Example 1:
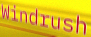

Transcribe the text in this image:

Windrush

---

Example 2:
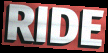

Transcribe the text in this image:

RIDE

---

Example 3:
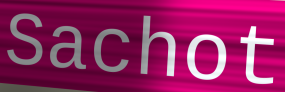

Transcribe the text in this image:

Sachot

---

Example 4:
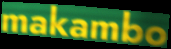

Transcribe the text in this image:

makambo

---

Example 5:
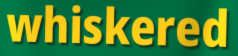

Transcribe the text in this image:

whiskered